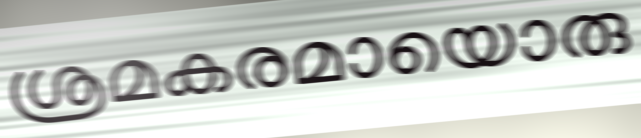
ശ്രമകരമായൊരു